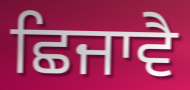
ਛਿਜਾਵੈ